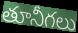
తూనీగలు